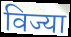
विज्या